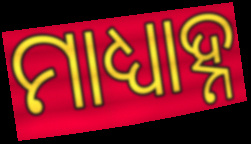
ମାଧ୍ୟାହ୍ନ